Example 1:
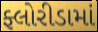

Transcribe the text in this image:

ફ્લોરીડામાં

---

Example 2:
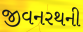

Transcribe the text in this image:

જીવનરથની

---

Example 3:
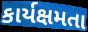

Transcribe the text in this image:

કાર્યક્ષમતા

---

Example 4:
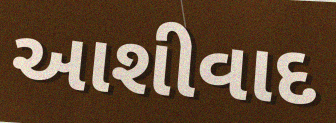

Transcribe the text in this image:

આશીવાદ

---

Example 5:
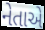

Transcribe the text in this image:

નેતાએ